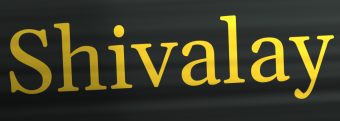
Shivalay